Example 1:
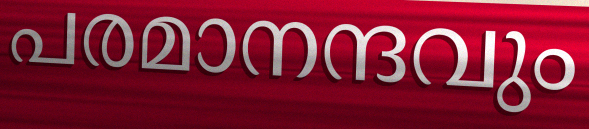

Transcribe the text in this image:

പരമാനന്ദവും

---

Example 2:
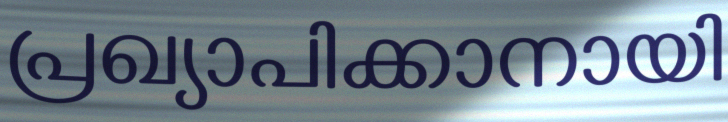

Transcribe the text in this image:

പ്രഖ്യാപിക്കാനായി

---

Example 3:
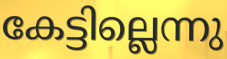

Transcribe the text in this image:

കേട്ടില്ലെന്നു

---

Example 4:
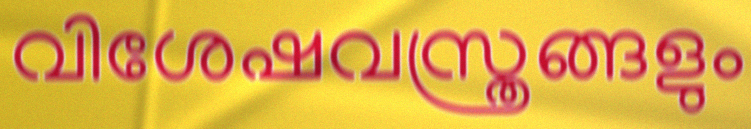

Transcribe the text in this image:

വിശേഷവസ്ത്രങ്ങളും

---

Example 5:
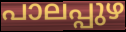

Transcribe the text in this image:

പാലപ്പുഴ